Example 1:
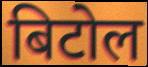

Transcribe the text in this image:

बिटोल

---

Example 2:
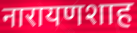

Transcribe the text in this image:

नारायणशाह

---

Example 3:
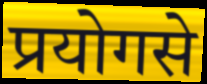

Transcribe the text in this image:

प्रयोगसे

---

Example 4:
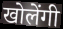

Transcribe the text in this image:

खोलेंगी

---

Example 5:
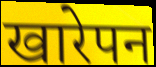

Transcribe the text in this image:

खारेपन